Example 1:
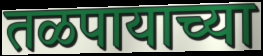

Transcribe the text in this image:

तळपायाच्या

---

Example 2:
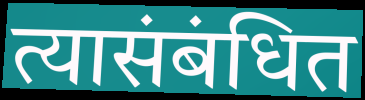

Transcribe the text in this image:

त्यासंबंधित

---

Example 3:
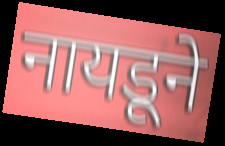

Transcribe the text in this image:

नायडूने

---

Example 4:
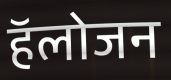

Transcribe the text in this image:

हॅलोजन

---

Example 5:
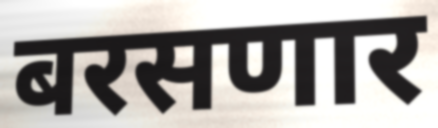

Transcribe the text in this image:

बरसणार